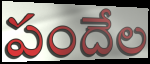
పందేల